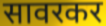
सावरकर